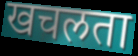
खचलता